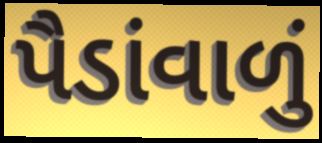
પૈડાંવાળું